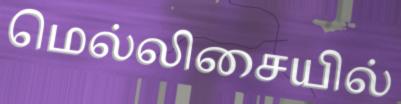
மெல்லிசையில்